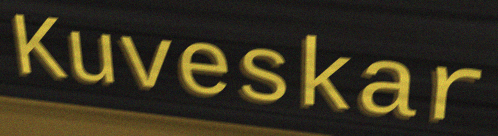
Kuveskar